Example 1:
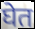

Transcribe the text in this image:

घेत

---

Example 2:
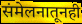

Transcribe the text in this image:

संमेलनातूनही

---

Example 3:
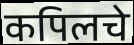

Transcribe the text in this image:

कपिलचे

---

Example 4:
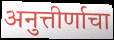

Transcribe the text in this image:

अनुत्तीर्णाचा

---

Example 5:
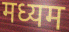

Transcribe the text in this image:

मध्यम